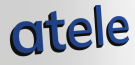
atele